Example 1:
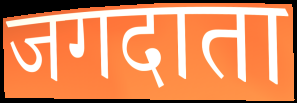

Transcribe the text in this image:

जगदाता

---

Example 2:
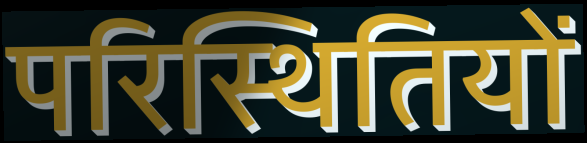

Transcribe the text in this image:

परिस्थितियों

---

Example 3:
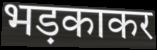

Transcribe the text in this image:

भड़काकर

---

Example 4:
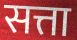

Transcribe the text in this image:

सत्ता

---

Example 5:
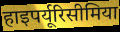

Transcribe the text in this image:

हाइपर्यूरिसीमिया